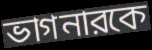
ভাগনারকে